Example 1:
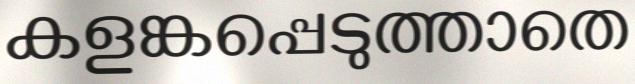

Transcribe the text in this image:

കളങ്കപ്പെടുത്താതെ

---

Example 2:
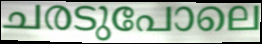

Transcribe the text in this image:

ചരടുപോലെ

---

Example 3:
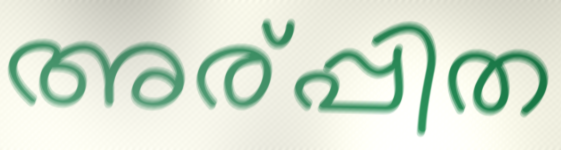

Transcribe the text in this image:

അര്പ്പിത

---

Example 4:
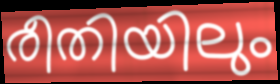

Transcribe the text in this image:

രീതിയിലും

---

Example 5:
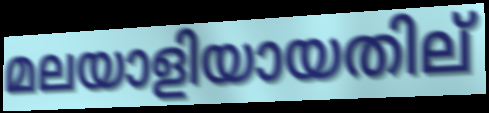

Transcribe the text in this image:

മലയാളിയായതില്